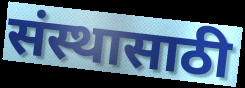
संस्थासाठी